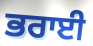
ਭਰਾਈ